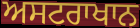
ਅਸਟਰਾਖਾਨ